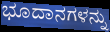
ಭೂದಾನಗಳನ್ನು